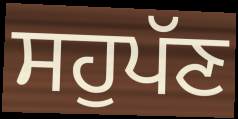
ਸਹੁਪੱਣ